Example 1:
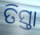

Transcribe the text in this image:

ତିସ୍ତା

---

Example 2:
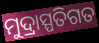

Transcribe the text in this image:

ମୁଦ୍ରାସ୍ପତିଗତ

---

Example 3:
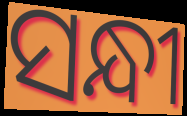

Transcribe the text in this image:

ସନ୍ଧୀ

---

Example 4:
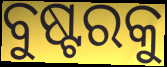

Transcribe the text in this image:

ବୁଷ୍ଟରକୁ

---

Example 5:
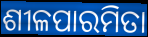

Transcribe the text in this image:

ଶୀଳପାରମିତା